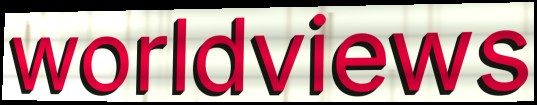
worldviews